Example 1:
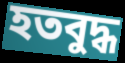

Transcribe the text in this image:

হতবুদ্ধ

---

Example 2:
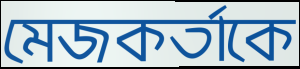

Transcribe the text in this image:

মেজকর্তাকে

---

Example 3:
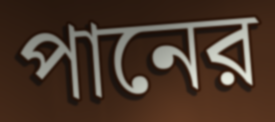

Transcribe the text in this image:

পানের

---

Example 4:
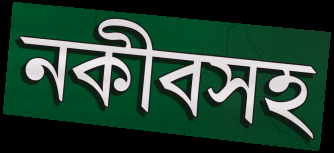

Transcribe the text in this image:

নকীবসহ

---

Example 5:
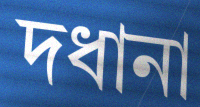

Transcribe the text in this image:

দধানা